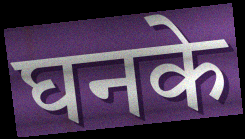
घनके